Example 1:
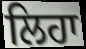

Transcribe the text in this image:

ਲਿਹਾ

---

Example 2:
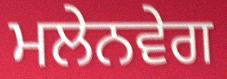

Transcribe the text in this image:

ਮਲੇਨਵੇਗ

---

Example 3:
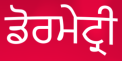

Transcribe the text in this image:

ਡੋਰਮੇਟ੍ਰੀ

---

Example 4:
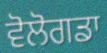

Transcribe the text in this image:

ਵੋਲੋਗਡਾ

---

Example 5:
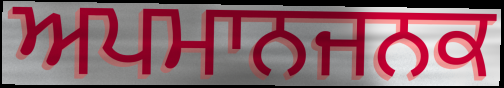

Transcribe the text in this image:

ਅਪਮਾਨਜਨਕ